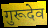
गुरूदेव